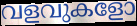
വളവുകളോ